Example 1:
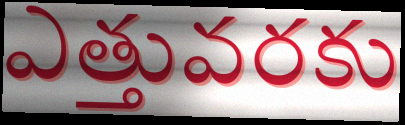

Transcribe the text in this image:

ఎత్తువరకు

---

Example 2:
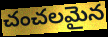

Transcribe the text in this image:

చంచలమైన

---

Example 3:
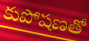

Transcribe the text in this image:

కుపోషణతో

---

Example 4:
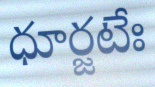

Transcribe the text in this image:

ధూర్జటేః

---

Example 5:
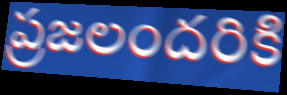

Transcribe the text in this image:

ప్రజలందరికి